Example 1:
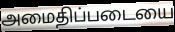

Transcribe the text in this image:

அமைதிப்படையை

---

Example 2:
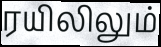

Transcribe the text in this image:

ரயிலிலும்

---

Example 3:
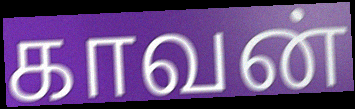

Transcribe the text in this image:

காவன்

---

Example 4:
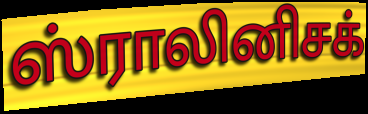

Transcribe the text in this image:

ஸ்ராலினிசக்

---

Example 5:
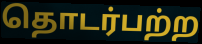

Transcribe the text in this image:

தொடர்பற்ற